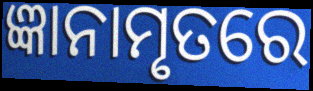
ଜ୍ଞାନାମୃତରେ